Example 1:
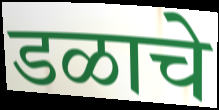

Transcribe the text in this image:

डळाचे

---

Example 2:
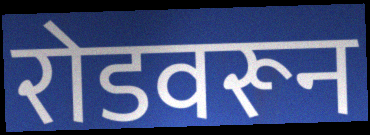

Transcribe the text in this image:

रोडवरून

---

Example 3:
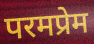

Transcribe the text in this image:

परमप्रेम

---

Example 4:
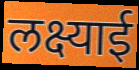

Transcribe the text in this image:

लक्ष्याई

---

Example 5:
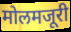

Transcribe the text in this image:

मोलमजूरी